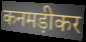
कनमड़ीकर